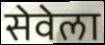
सेवेला